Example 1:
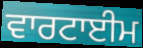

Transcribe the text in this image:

ਵਾਰਟਾਈਮ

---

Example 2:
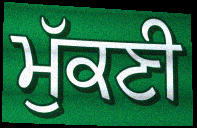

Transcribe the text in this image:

ਮੁੱਕਣੀ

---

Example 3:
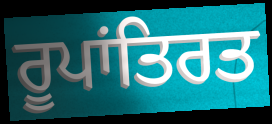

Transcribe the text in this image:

ਰੂਪਾਂਤਿਰਤ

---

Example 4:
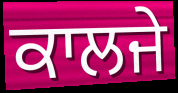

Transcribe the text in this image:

ਕਾਲਜੇ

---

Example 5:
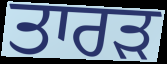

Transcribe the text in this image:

ਤਾਰੜ